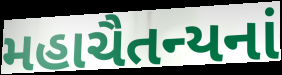
મહાચૈતન્યનાં